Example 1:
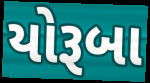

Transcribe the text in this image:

યોરૂબા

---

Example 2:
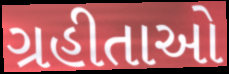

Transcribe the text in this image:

ગ્રહીતાઓ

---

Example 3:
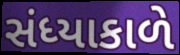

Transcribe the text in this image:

સંધ્યાકાળે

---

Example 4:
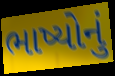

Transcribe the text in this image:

ભાષ્યોનું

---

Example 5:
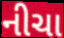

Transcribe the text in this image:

નીચા